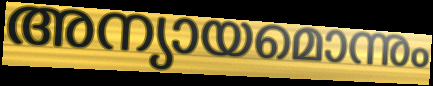
അന്യായമൊന്നും